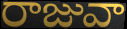
రాజువా